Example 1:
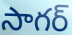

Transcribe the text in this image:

సాగర్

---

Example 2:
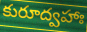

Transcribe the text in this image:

కురూద్వహాః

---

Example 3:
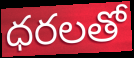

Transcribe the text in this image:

ధరలతో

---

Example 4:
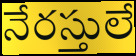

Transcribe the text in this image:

నేరస్తులే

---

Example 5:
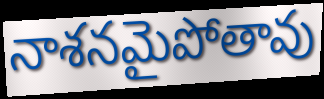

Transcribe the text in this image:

నాశనమైపోతావు